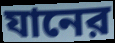
যানের